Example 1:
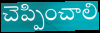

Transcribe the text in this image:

చెప్పించాలి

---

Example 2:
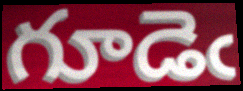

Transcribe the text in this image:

గూడెఁ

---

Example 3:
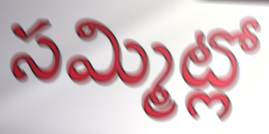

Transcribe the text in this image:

సమ్మిట్లో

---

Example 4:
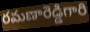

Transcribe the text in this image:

రమణారెడ్డిగారి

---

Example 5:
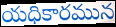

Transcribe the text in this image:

యధికారమున